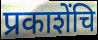
प्रकाशेंचि